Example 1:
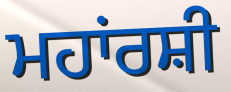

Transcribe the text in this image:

ਮਹਾਂਰਸ਼ੀ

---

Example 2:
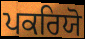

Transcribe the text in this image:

ਪਕਰਿਯੋ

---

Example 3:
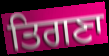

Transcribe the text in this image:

ਤਿਗਣਾ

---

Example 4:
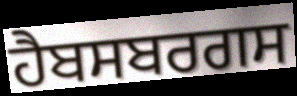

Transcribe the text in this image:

ਹੈਬਸਬਰਗਸ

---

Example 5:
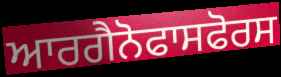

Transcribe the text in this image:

ਆਰਗੈਨੋਫਾਸਫੋਰਸ